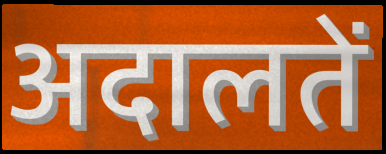
अदालतें